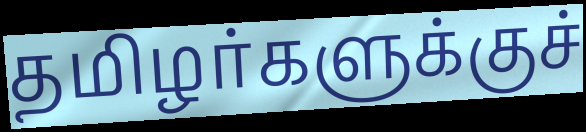
தமிழர்களுக்குச்